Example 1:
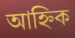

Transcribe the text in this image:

আহ্নিক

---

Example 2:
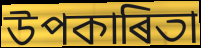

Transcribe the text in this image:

উপকাৰিতা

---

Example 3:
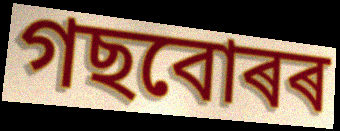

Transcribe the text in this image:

গছবোৰৰ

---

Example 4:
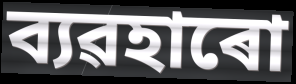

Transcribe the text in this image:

ব্যৱহাৰো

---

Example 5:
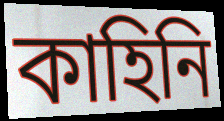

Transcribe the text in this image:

কাহিনি